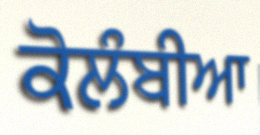
ਕੋਲੰਬੀਆ